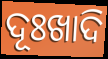
ଦୂଃଖାଦି